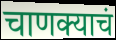
चाणक्याचं